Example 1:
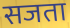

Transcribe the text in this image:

सजता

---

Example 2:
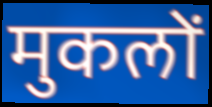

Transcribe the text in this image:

मुकलों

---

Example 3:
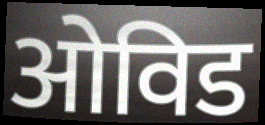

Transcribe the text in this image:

ओविड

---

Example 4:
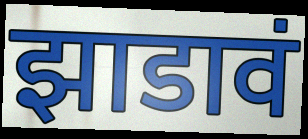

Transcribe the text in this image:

झाडावं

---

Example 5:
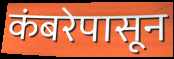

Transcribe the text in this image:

कंबरेपासून